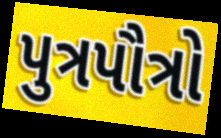
પુત્રપૌત્રો